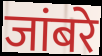
जांबरे